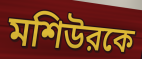
মশিউরকে